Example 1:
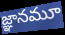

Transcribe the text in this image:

జ్ఞానమూ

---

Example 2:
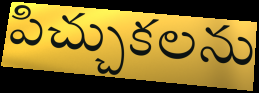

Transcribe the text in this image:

పిచ్చుకలను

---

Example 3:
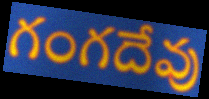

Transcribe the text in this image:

గంగదేవు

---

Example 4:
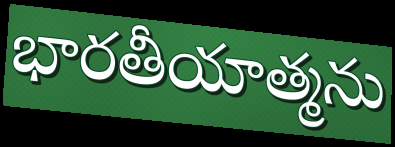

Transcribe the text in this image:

భారతీయాత్మను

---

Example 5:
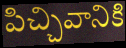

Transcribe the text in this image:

పిచ్చివానికి